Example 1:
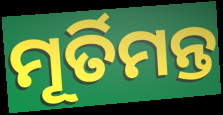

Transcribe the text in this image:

ମୂର୍ତିମନ୍ତ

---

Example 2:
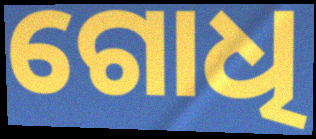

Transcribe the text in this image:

ଗୋଧି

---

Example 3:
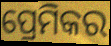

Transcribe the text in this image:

ପ୍ରେମିକର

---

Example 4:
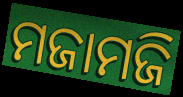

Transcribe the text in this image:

ମଜାମଜି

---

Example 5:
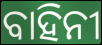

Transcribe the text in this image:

ବାହିନୀ